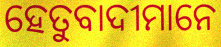
ହେତୁବାଦୀମାନେ